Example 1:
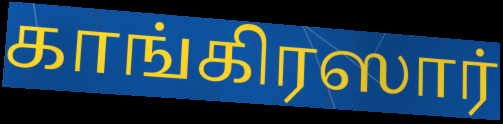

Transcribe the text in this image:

காங்கிரஸார்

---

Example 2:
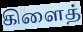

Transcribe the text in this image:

கிளைத்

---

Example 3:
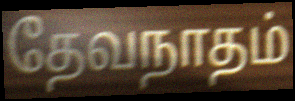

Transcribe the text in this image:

தேவநாதம்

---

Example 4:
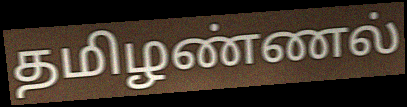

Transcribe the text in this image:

தமிழண்ணல்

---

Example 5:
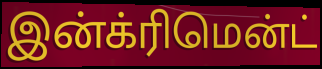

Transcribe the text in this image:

இன்க்ரிமென்ட்